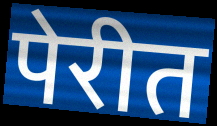
पेरीत